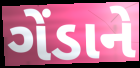
ગેંડાને